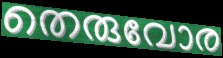
തെരുവോര